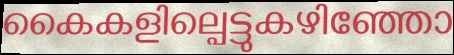
കൈകളില്പെട്ടുകഴിഞ്ഞോ